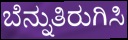
ಬೆನ್ನುತಿರುಗಿಸಿ